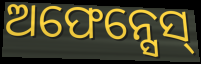
ଅଫେନ୍ସେସ୍